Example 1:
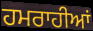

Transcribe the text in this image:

ਹਮਰਾਹੀਆਂ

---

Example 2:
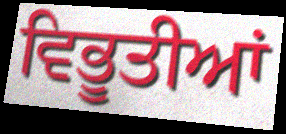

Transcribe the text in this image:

ਵਿਭੂਤੀਆਂ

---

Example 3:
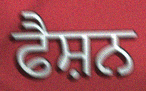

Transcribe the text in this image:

ਫੈਸ਼ਨ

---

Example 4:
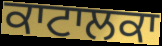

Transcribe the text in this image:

ਕਾਟਾਲਕਾ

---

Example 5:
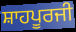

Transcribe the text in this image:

ਸ਼ਾਹਪੂਰਜੀ